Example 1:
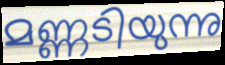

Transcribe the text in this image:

മണ്ണടിയുന്നു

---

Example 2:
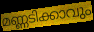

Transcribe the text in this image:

മണ്ണടിക്കാവും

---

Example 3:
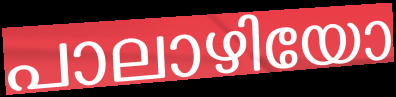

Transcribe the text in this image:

പാലാഴിയോ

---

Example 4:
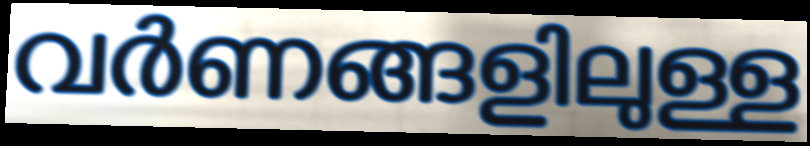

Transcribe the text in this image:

വർണങ്ങളിലുള്ള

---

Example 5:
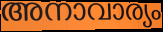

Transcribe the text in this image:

അനാവാര്യം